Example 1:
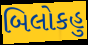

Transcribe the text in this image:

બિલોકહુ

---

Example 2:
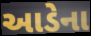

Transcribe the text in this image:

આડેના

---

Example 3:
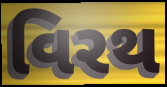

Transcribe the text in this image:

વિરથ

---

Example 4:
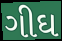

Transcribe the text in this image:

ગીઘ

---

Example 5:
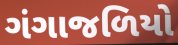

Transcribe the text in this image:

ગંગાજળિયો